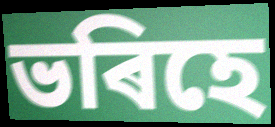
ভৰিহে